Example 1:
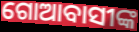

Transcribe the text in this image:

ଗୋଆବାସୀଙ୍କ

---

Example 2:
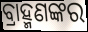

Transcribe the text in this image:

ବ୍ରାହ୍ମଣଙ୍କର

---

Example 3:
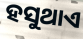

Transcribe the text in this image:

ହସୁଥାଏ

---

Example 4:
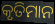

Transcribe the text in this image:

କୃତିମାନ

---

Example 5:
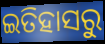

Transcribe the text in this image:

ଇତିହାସରୁ